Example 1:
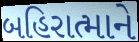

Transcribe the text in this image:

બહિરાત્માને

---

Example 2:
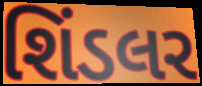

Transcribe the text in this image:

શિંડલર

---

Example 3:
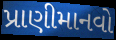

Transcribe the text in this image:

પ્રાણીમાનવો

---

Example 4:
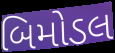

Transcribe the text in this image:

બિમોડલ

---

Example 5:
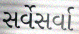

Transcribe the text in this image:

સર્વેસર્વા